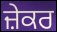
ਜ਼ੇਕਰ